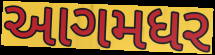
આગમધર